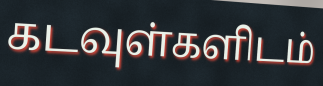
கடவுள்களிடம்